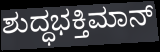
ಶುದ್ಧಭಕ್ತಿಮಾನ್